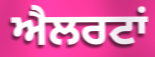
ਐਲਰਟਾਂ